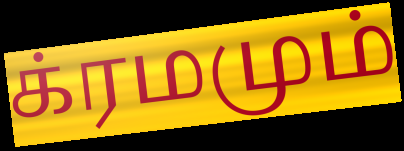
க்ரமமும்